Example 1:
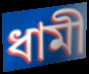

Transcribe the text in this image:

ধামী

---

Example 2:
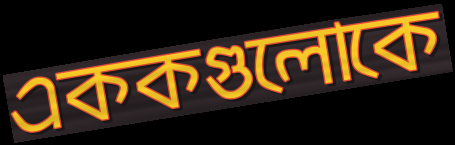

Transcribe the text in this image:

এককগুলোকে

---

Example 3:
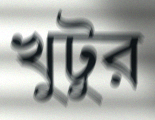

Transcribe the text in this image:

খুটুর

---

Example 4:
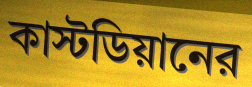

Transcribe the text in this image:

কাস্টডিয়ানের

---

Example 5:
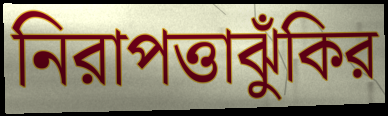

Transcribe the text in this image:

নিরাপত্তাঝুঁকির